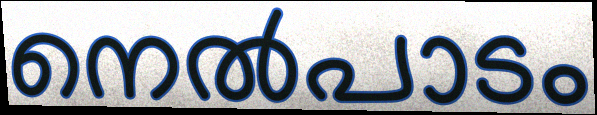
നെൽപാടം